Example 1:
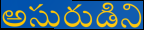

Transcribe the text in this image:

అసురుడిని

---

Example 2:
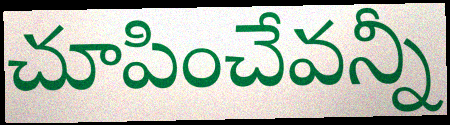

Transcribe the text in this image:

చూపించేవన్నీ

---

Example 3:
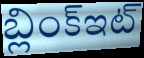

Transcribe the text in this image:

బ్లింక్ఇట్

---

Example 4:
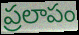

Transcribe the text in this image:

ప్రలాపం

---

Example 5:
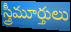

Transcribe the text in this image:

స్త్రీమూర్తులు